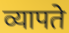
व्यापते